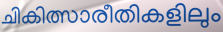
ചികിത്സാരീതികളിലും